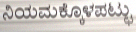
ನಿಯಮಕ್ಕೊಳಪಟ್ಟು